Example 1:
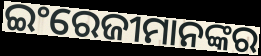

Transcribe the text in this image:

ଇଂରେଜୀମାନଙ୍କର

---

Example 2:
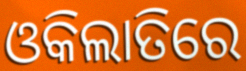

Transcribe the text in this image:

ଓକିଲାତିରେ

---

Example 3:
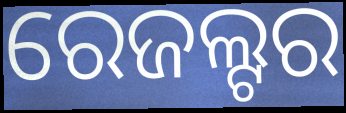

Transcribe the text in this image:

ରେଜଲ୍ଟର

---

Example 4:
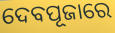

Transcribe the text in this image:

ଦେବପୂଜାରେ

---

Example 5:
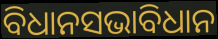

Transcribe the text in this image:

ବିଧାନସଭାବିଧାନ